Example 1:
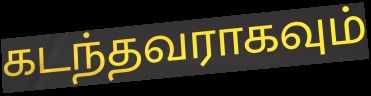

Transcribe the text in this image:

கடந்தவராகவும்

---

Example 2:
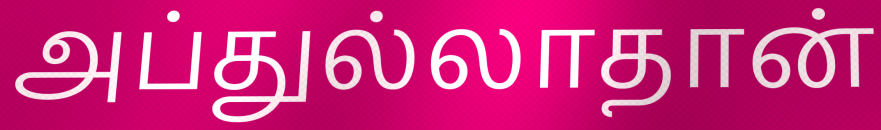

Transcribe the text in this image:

அப்துல்லாதான்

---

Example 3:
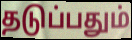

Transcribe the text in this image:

தடுப்பதும்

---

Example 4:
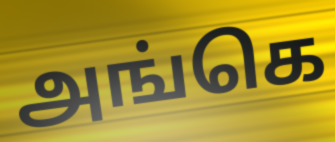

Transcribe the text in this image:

அங்கெ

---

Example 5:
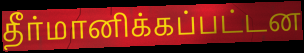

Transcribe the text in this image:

தீர்மானிக்கப்பட்டன